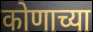
कोणाच्या